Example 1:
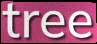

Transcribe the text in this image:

tree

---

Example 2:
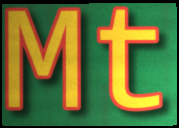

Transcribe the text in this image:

Mt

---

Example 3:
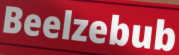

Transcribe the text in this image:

Beelzebub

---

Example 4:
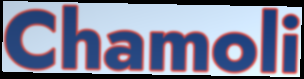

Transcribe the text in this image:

Chamoli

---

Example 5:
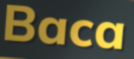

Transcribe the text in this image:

Baca